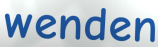
wenden